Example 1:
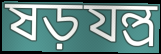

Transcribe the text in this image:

ষড়যন্ত্র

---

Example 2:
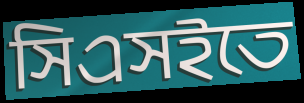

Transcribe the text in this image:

সিএসইতে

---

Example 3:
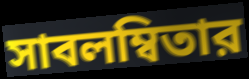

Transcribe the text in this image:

সাবলম্বিতার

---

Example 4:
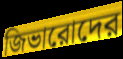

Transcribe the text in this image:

জিভারোদের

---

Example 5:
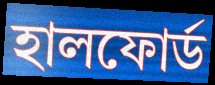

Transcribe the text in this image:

হালফোর্ড